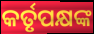
କର୍ତୃପକ୍ଷଙ୍କ